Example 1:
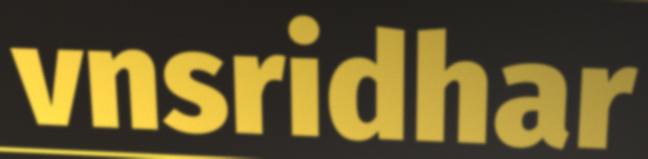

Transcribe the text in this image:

vnsridhar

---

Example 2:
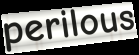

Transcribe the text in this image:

perilous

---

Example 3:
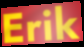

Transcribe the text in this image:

Erik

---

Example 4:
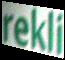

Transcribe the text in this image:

rekli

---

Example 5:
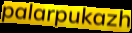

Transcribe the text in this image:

palarpukazh